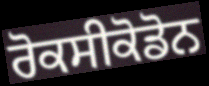
ਰੋਕਸੀਕੋਡੋਨ